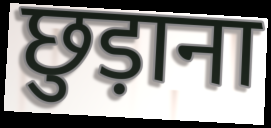
छुड़ाना